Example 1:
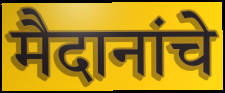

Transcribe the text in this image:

मैदानांचे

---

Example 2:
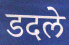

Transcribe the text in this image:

डदले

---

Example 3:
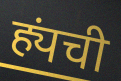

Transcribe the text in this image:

ह्यंची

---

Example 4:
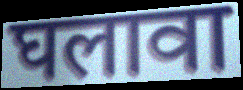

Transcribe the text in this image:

घलावा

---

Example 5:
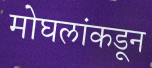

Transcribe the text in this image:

मोघलांकडून